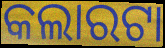
କଲାରଟା